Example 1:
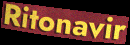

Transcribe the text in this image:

Ritonavir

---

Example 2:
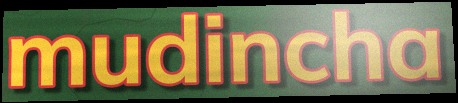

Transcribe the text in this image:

mudincha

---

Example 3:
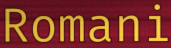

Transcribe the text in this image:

Romani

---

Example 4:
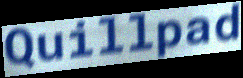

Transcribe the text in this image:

Quillpad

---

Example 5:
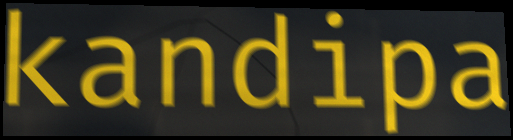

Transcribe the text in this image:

kandipa